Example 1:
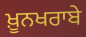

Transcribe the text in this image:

ਖ਼ੂਨਖਰਾਬੇ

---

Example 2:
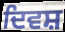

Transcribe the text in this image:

ਦਿਵਸ਼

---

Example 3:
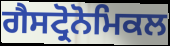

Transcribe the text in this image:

ਗੈਸਟ੍ਰੋਨੋਮਿਕਲ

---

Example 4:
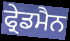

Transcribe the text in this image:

ਫ੍ਰੇਡਮੈਨ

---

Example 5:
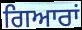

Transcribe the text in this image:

ਗਿਆਰਾਂ